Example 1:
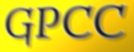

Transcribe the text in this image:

GPCC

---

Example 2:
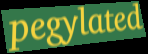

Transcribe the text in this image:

pegylated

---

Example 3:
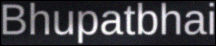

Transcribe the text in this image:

Bhupatbhai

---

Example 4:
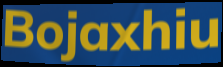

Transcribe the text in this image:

Bojaxhiu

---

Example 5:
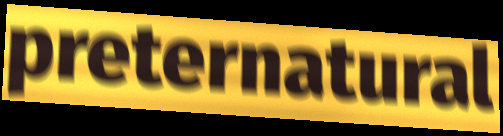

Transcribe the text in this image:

preternatural